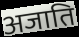
अजाति